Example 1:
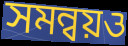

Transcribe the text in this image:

সমন্বয়ও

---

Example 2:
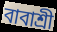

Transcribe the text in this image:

বাবাশ্রী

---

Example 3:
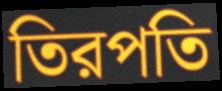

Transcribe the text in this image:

তিরপতি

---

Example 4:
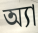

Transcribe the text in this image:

অ্যা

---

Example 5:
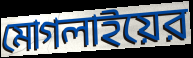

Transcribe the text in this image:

মোগলাইয়ের